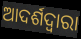
ଆଦର୍ଶଦ୍ୱାରା